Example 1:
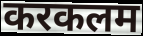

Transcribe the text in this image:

करकलम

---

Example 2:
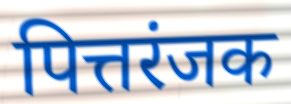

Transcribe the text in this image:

पित्तरंजक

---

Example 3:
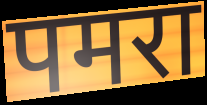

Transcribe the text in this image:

पमरा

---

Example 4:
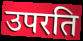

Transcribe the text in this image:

उपरति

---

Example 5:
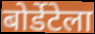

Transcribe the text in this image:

बोर्डेटेला